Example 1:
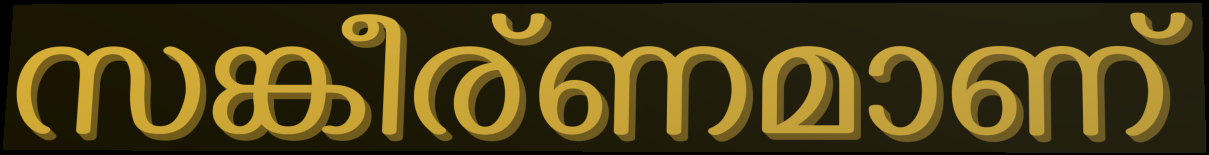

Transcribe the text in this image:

സങ്കീര്ണമാണ്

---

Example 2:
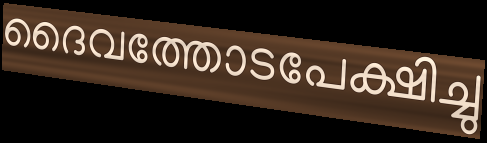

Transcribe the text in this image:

ദൈവത്തോടപേക്ഷിച്ചു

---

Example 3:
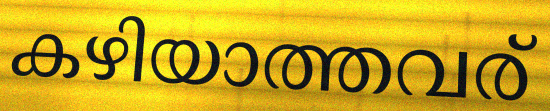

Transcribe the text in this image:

കഴിയാത്തവര്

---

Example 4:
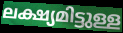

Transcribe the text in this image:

ലക്ഷ്യമിട്ടുള്ള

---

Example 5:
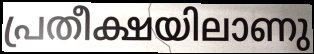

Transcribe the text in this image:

പ്രതീക്ഷയിലാണു